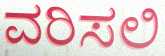
ವರಿಸಲಿ